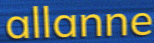
allanne